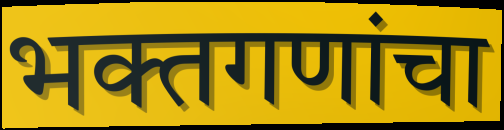
भक्तगणांचा